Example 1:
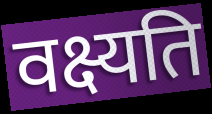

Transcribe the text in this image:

वक्ष्यति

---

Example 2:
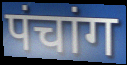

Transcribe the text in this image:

पंचांग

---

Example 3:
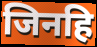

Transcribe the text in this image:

जिनहि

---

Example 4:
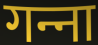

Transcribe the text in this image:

गन्‍ना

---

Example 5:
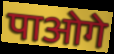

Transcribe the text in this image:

पाओगे